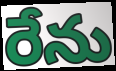
రేను